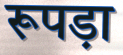
रूपड़ा